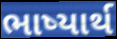
ભાષ્યાર્થ